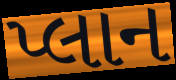
પ્લાન